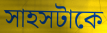
সাহসটাকে